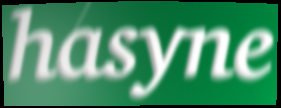
hasyne